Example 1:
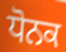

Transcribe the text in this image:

ਧੋਨਕ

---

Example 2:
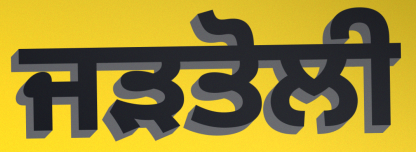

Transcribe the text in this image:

ਜੜਤੋਲੀ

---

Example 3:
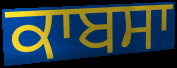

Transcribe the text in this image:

ਕਾਬਸਾ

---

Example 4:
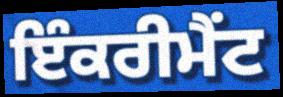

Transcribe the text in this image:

ਇੰਕਰੀਮੈਂਟ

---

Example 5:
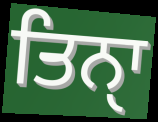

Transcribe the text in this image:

ਤਿਨੑਾ